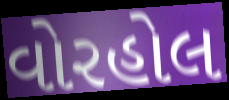
વોરહોલ